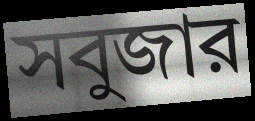
সবুজার